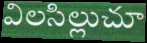
విలసిల్లుచూ